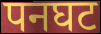
पनघट